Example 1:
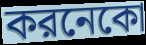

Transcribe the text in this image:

করনেকো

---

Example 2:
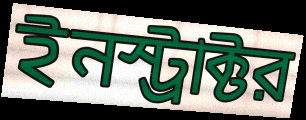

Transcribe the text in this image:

ইনস্ট্রাক্টর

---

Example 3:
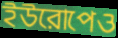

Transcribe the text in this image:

ইউরোপেও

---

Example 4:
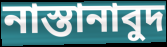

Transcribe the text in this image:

নাস্তানাবুদ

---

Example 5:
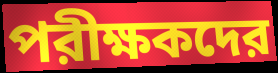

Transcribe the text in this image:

পরীক্ষকদের